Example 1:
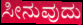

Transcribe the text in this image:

ಸೀನುವುದು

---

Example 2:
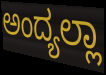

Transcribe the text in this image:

ಅಂದ್ಯಲ್ಲಾ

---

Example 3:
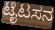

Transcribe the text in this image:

ಟೈಟಸನ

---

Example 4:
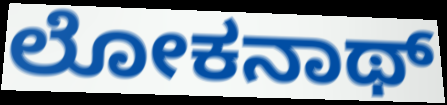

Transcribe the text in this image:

ಲೋಕನಾಥ್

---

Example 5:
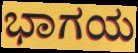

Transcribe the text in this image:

ಭಾಗಯ